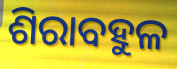
ଶିରାବହୁଳ